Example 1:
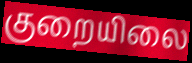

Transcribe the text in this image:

குறையிலை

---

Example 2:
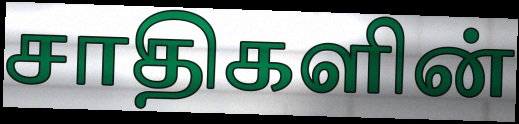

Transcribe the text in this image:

சாதிகளின்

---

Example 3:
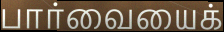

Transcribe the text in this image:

பார்வையைக்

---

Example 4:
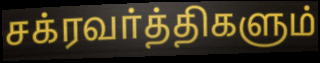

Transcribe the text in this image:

சக்ரவர்த்திகளும்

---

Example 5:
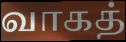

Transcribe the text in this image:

வாகத்